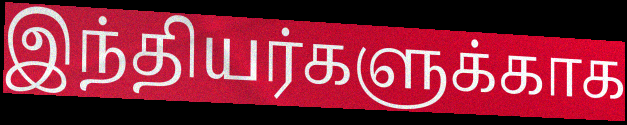
இந்தியர்களுக்காக